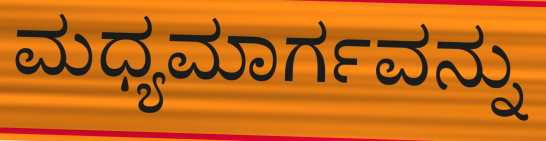
ಮಧ್ಯಮಾರ್ಗವನ್ನು